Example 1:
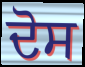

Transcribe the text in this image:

ਦੋਸ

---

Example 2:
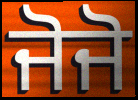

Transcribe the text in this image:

ਜੋਜੋ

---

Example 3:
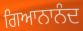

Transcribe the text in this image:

ਗਿਆਨਾਨੰਦ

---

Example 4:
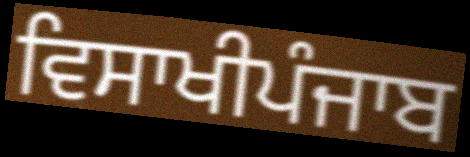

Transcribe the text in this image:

ਵਿਸਾਖੀਪੰਜਾਬ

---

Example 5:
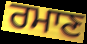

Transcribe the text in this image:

ਰਮਾਣ